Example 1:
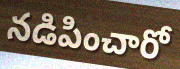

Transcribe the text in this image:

నడిపించారో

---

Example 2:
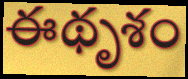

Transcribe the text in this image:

ఈథృశం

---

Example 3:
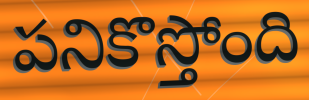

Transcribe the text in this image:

పనికొస్తోంది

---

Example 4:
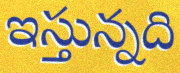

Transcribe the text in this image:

ఇస్తున్నది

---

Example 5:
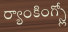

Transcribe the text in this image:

ర్యాంకింగ్స్లో